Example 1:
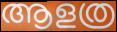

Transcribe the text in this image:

ആളത്ര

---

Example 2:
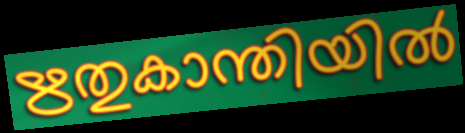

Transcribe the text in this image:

ഋതുകാന്തിയിൽ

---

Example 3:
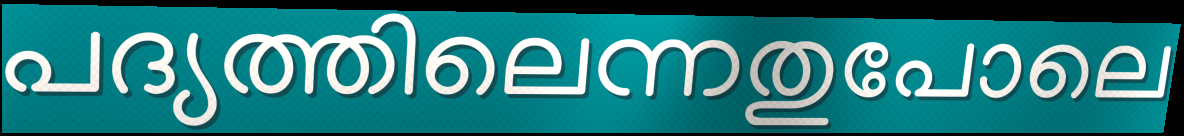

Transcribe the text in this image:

പദ്യത്തിലെന്നതുപോലെ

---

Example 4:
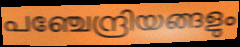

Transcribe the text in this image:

പഞ്ചേന്ദ്രിയങ്ങളും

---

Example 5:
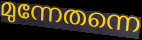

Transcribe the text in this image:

മുന്നേതന്നെ